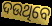
ଦଉଥିବେ